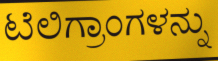
ಟೆಲಿಗ್ರಾಂಗಳನ್ನು